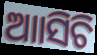
ଆାସିଚି